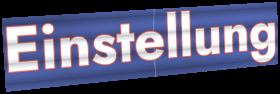
Einstellung